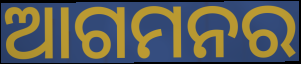
ଆଗମନର